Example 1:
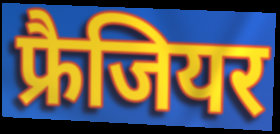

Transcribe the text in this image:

फ्रैजियर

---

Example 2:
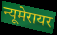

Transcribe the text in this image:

न्यूमेरायर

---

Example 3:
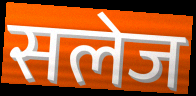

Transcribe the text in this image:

सलेज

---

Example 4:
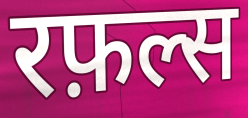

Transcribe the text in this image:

रफ़ल्स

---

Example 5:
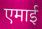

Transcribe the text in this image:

एमाई